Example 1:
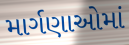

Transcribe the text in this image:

માર્ગણાઓમાં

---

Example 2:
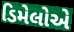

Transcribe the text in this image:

ડિમેલોએ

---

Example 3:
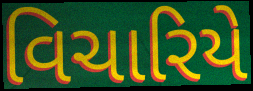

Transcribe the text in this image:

વિચારિયે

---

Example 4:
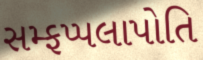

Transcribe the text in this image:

સમ્ફપ્પલાપોતિ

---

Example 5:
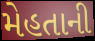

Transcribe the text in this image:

મેહતાની